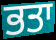
ਭਤਾ